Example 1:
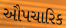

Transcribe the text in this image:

ઔપચારિક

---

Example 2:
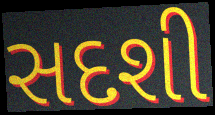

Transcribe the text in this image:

સદશી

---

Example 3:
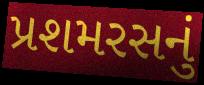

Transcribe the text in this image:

પ્રશમરસનું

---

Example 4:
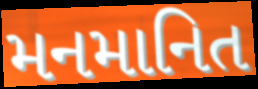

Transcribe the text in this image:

મનમાનિત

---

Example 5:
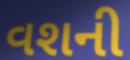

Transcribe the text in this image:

વશની